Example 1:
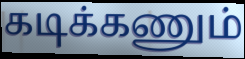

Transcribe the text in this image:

கடிக்கணும்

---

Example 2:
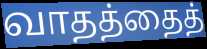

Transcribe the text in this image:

வாதத்தைத்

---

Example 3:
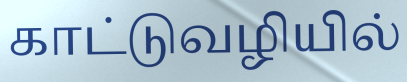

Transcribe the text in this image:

காட்டுவழியில்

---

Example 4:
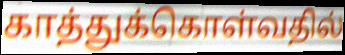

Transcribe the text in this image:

காத்துக்கொள்வதில்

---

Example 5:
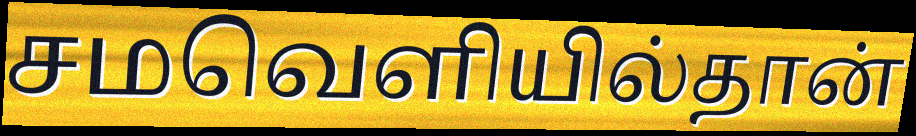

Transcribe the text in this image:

சமவெளியில்தான்